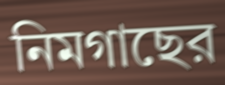
নিমগাছের